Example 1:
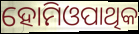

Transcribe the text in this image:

ହୋମିଓପାଥିକ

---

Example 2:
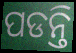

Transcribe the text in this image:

ପଡନ୍ତି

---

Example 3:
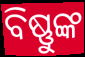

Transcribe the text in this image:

ବିଷ୍ଣୁଙ୍କ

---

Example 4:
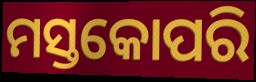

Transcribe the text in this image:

ମସ୍ତକୋପରି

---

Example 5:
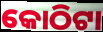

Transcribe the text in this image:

କୋଠିଟା